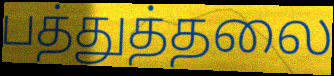
பத்துத்தலை